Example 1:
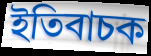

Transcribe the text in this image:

ইতিবাচক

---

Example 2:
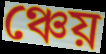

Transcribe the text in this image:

ঞ্চেয়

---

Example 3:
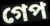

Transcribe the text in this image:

গেপ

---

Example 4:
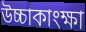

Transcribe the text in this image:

উচ্চাকাংক্ষা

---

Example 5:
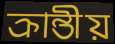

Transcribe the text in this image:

ক্ৰান্তীয়